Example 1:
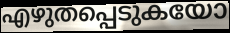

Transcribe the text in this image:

എഴുതപ്പെടുകയോ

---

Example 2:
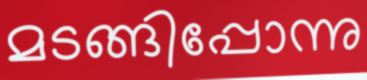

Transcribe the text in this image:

മടങ്ങിപ്പോന്നു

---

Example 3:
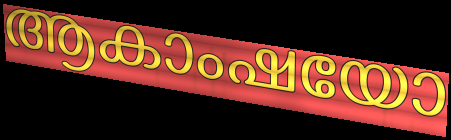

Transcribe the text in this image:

ആകാംഷയോ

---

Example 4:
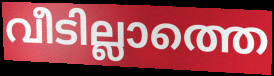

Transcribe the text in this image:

വീടില്ലാത്തെ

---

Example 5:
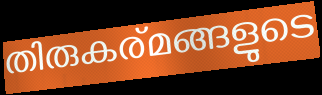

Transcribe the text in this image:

തിരുകര്മങ്ങളുടെ